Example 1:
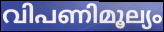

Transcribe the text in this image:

വിപണിമൂല്യം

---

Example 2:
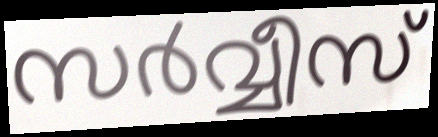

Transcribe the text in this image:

സർവ്വീസ്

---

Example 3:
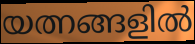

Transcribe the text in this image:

യത്നങ്ങളിൽ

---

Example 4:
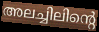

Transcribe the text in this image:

അലച്ചിലിന്റെ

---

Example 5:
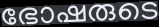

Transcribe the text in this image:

ഭോഷരുടെ